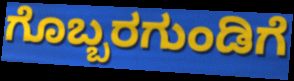
ಗೊಬ್ಬರಗುಂಡಿಗೆ